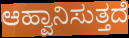
ಆಹ್ವಾನಿಸುತ್ತದೆ